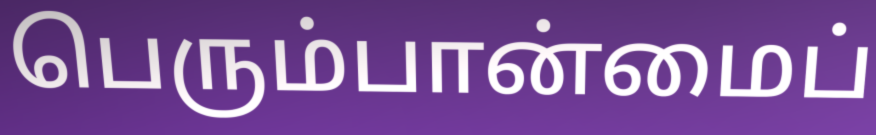
பெரும்பான்மைப்